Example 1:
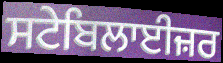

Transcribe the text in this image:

ਸਟੇਬਿਲਾਈਜ਼ਰ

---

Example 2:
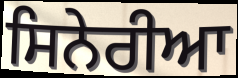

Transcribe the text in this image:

ਸਿਨੇਰੀਆ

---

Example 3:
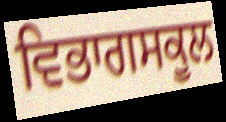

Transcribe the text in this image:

ਵਿਭਾਗਸਕੂਲ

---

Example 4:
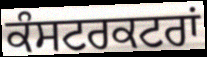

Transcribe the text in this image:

ਕੰਸਟਰਕਟਰਾਂ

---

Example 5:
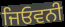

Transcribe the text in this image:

ਜਿਓਵਨੀ